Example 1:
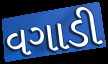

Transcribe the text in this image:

વગાડી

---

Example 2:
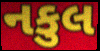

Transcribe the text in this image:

નકુલ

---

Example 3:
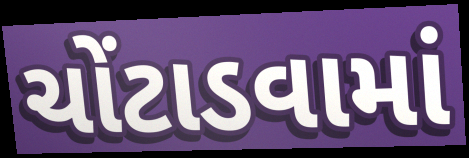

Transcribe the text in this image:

ચોંટાડવામાં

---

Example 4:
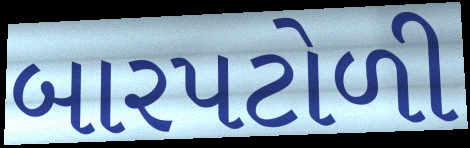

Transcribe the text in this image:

બારપટોળી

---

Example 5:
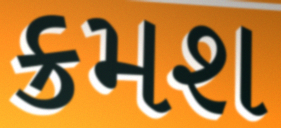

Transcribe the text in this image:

ક્રમશ